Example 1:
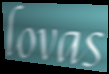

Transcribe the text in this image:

lovas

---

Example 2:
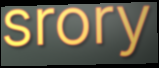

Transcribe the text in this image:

srory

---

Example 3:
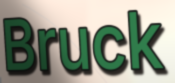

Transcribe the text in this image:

Bruck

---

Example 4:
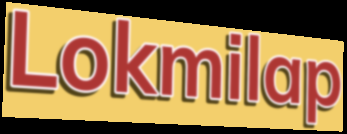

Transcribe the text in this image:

Lokmilap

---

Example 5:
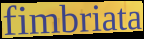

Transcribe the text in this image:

fimbriata